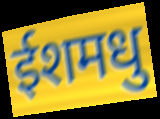
ईशमधु